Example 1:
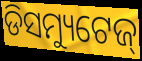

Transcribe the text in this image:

ଡିସମ୍ୟୁଟେଜ୍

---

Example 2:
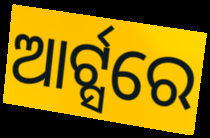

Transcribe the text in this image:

ଆର୍ଟ୍ସରେ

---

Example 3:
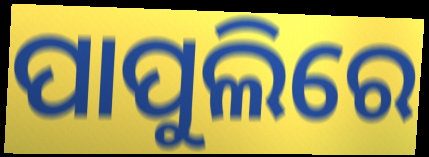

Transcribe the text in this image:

ପାପୁଲିରେ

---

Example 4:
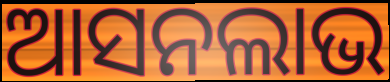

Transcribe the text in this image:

ଆସନଲାଭ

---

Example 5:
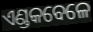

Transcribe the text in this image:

ଏଣ୍ଡକବେଳେ